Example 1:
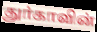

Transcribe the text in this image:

துர்காவின்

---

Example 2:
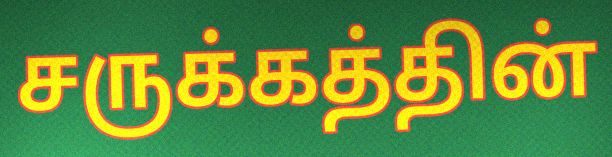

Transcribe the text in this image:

சருக்கத்தின்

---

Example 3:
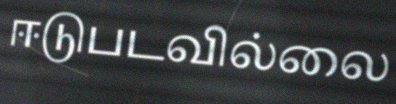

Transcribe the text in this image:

ஈடுபடவில்லை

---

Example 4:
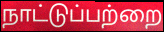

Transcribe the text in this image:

நாட்டுப்பற்றை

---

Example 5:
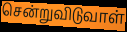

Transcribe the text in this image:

சென்றுவிடுவாள்